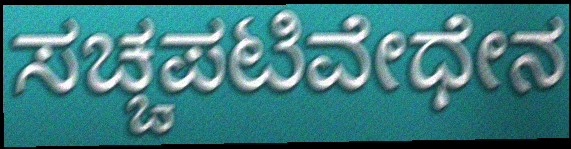
ಸಚ್ಚಪಟಿವೇಧೇನ